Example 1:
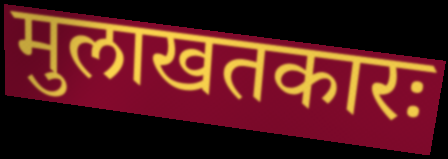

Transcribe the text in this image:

मुलाखतकारः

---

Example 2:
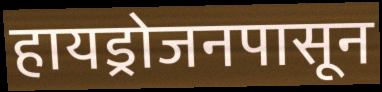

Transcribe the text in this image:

हायड्रोजनपासून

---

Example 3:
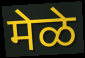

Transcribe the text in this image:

मेळे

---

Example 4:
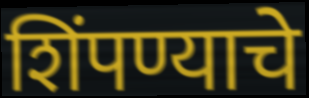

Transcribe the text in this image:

शिंपण्याचे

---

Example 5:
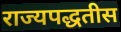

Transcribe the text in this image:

राज्यपद्धतीस